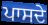
ਪਾਸਦੇ